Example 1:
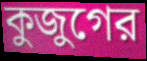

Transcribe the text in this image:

কুজুগের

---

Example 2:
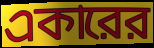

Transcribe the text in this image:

একারের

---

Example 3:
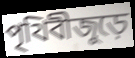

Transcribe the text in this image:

পৃথিবীজুড়ে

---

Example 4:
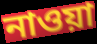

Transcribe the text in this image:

নাওয়া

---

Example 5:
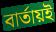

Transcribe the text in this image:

বার্তায়ই